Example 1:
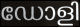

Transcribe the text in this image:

ഡോളി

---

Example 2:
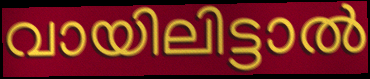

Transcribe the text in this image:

വായിലിട്ടാൽ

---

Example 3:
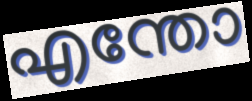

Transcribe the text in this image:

എന്തോ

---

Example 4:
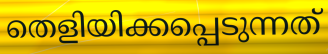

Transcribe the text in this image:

തെളിയിക്കപ്പെടുന്നത്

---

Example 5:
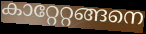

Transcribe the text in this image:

കാറ്റേറ്റങ്ങനെ